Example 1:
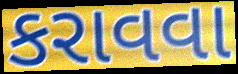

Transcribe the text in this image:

કરાવવા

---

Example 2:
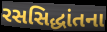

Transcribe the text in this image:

રસસિદ્ધાંતના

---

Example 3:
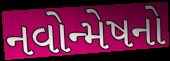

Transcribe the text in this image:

નવોન્મેષનો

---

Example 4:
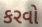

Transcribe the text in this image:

કરવો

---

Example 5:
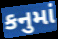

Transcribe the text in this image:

કનુમાં